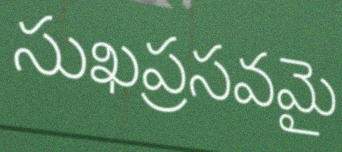
సుఖప్రసవమై